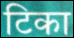
टिका